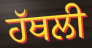
ਹੱਥਲੀ